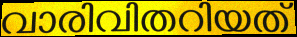
വാരിവിതറിയത്